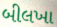
બીલખા